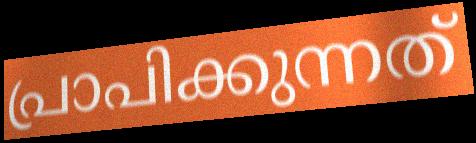
പ്രാപിക്കുന്നത്